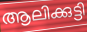
ആലിക്കുട്ടി